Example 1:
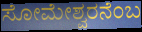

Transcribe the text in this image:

ಸೋಮೇಶ್ವರನೆಂಬ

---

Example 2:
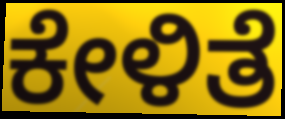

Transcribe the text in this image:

ಕೇಳಿತೆ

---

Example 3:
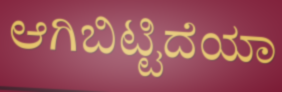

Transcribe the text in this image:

ಆಗಿಬಿಟ್ಟಿದೆಯಾ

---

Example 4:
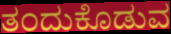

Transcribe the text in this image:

ತಂದುಕೊಡುವ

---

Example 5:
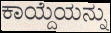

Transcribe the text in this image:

ಕಾಯ್ದೆಯನ್ನು